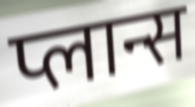
प्लान्स